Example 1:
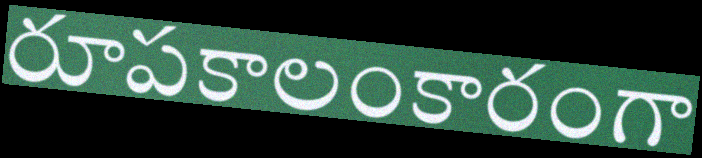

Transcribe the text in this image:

రూపకాలంకారంగా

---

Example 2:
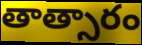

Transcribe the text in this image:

తాత్సారం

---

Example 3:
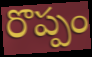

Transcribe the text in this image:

రొప్పం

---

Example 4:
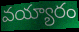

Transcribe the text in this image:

వయ్యారం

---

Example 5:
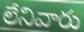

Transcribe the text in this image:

లేనివారు